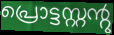
പ്രൊട്ടസ്റ്റന്റു